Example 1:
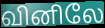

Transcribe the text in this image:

வினிலே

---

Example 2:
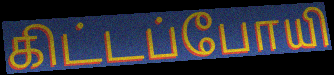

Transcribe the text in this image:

கிட்டப்போயி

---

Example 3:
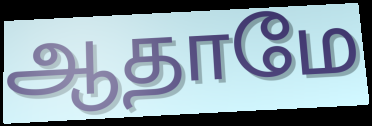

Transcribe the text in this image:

ஆதாமே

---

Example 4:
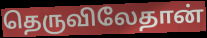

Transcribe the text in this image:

தெருவிலேதான்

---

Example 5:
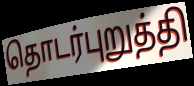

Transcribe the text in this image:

தொடர்புறுத்தி